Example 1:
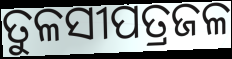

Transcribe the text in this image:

ତୁଳସୀପତ୍ରଜଳ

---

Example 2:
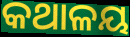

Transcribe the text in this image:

କଥାଳୟ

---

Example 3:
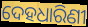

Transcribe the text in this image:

ଦେହଧାରିଣୀ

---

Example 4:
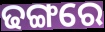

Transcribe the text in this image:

ଢଙ୍ଗରେ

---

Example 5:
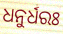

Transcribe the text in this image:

ଧନୁର୍ଧରଃ